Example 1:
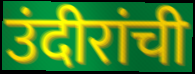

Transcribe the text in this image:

उंदीरांची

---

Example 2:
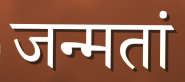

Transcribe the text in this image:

जन्मतां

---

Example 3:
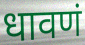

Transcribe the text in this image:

धावणं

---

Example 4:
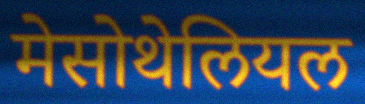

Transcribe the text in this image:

मेसोथेलियल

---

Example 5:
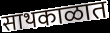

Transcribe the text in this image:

साथकाळात